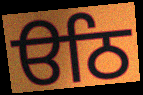
ੳਠਿ